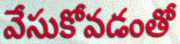
వేసుకోవడంతో